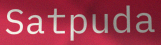
Satpuda